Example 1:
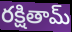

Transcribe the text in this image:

రక్షితామ్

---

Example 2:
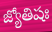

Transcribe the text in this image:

జ్యోతిషః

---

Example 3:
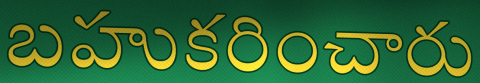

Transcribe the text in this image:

బహుకరించారు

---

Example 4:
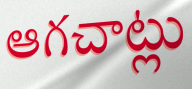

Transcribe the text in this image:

ఆగచాట్లు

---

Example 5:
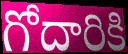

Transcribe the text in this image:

గోదారికి